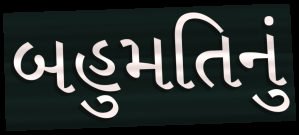
બહુમતિનું